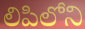
లిపిలోని